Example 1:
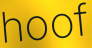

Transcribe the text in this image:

hoof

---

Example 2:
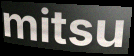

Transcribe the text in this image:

mitsu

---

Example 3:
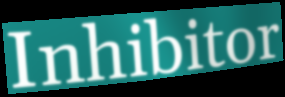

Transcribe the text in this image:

Inhibitor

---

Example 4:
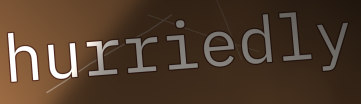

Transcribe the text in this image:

hurriedly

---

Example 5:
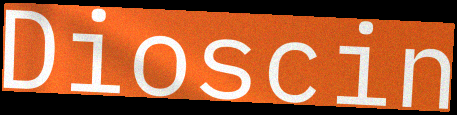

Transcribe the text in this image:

Dioscin